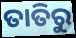
ତାତିରୁ